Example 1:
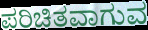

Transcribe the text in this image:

ಪರಿಚಿತವಾಗುವ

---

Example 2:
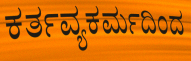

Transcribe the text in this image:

ಕರ್ತವ್ಯಕರ್ಮದಿಂದ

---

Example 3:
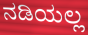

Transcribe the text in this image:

ನಡಿಯಲ್ಲ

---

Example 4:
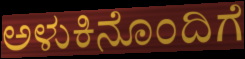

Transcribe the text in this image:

ಅಳುಕಿನೊಂದಿಗೆ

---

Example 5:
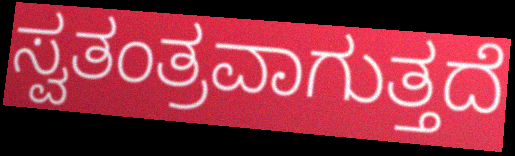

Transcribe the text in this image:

ಸ್ವತಂತ್ರವಾಗುತ್ತದೆ